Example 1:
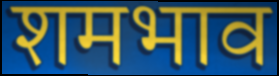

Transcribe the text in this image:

शमभाव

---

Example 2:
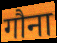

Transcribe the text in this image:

गौना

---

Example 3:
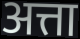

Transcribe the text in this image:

अत्ता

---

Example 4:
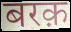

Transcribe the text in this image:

बरक़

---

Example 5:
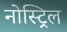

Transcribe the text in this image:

नोस्ट्रिल